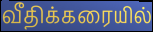
வீதிக்கரையில்